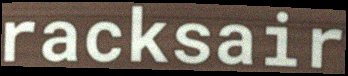
racksair